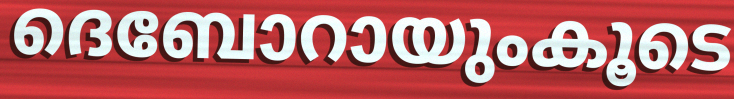
ദെബോറായുംകൂടെ